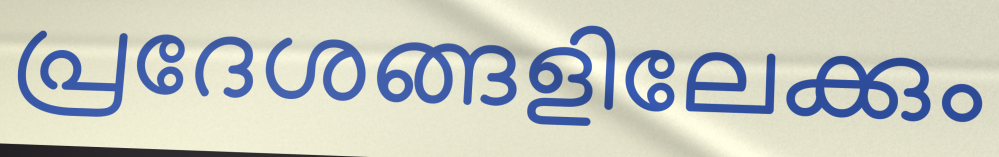
പ്രദേശങ്ങളിലേക്കും